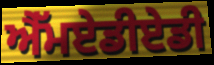
ਐੱਮਏਡੀਏਡੀ